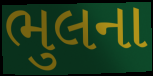
ભુલના